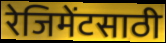
रेजिमेंटसाठी